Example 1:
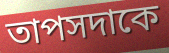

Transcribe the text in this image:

তাপসদাকে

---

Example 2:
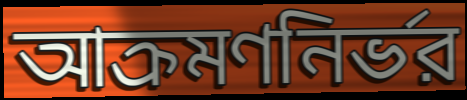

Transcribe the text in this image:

আক্রমণনির্ভর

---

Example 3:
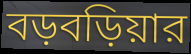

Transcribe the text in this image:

বড়বড়িয়ার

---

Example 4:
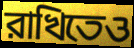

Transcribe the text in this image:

রাখিতেও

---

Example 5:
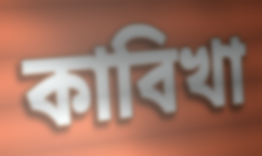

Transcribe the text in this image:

কাবিখা